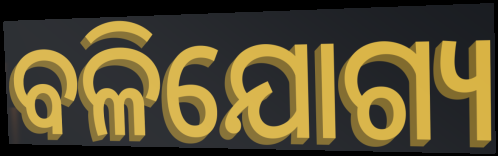
ବଳିଯୋଗ୍ୟ